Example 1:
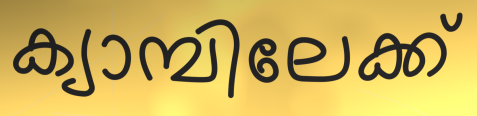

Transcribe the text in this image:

ക്യാമ്പിലേക്ക്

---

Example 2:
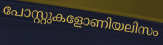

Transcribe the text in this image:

പോസ്റ്റുകളോണിയലിസം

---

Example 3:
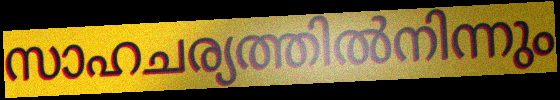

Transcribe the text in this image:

സാഹചര്യത്തിൽനിന്നും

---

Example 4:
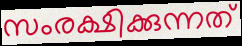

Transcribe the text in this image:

സംരക്ഷിക്കുന്നത്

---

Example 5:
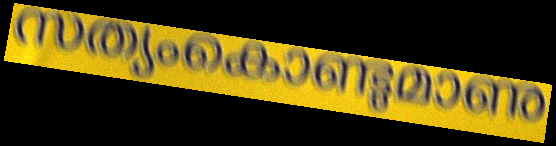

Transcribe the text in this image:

സത്യംകൊണ്ടുമാണു